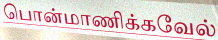
பொன்மாணிக்கவேல்